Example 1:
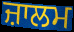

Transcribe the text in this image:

ਜ਼ਾਲਮ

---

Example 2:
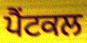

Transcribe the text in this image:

ਪੈਂਟਕਲ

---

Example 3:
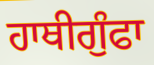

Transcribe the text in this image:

ਹਾਥੀਗੁੰਫਾ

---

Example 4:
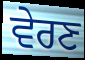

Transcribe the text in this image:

ਵੇਰਣ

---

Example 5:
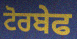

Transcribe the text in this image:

ਟੋਰਬੇਫ